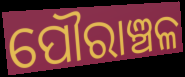
ପୌରାଞ୍ଚଳ